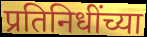
प्रतिनिधींच्या